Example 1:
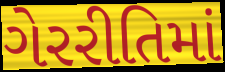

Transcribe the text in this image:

ગેરરીતિમાં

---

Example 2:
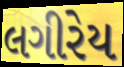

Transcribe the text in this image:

લગીરેય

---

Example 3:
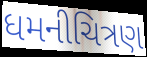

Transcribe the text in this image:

ધમનીચિત્રણ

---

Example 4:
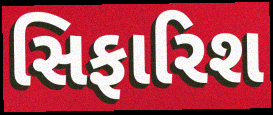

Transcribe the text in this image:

સિફારિશ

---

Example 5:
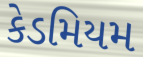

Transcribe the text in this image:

કેડમિયમ